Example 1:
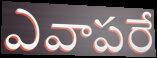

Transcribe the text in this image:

ఎవాపరే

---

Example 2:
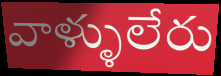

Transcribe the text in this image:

వాళ్ళులేరు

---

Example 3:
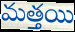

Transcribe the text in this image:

మత్తయి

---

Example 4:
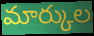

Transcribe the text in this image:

మార్కుల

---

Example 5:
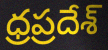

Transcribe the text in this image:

ధ్రప్రదేశ్